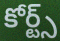
కోర్ట్స్